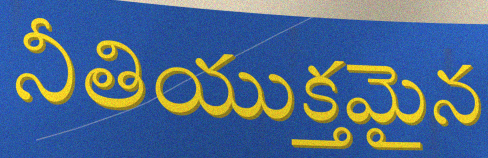
నీతియుక్తమైన